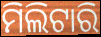
ମିଲିଟାରି